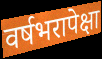
वर्षभरापेक्षा